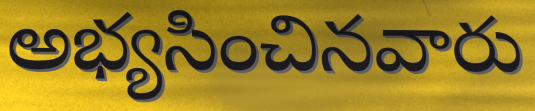
అభ్యసించినవారు